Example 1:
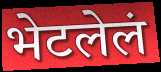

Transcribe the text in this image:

भेटलेलं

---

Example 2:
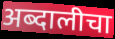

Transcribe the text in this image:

अब्दालीचा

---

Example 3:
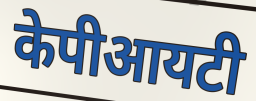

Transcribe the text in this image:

केपीआयटी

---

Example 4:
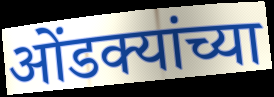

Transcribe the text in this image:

ओंडक्यांच्या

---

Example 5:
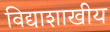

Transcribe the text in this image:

विद्याशाखीय